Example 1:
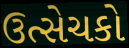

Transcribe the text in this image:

ઉત્સેચકો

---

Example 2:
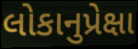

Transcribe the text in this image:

લોકાનુપ્રેક્ષા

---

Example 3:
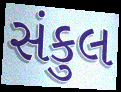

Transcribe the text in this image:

સંકુલ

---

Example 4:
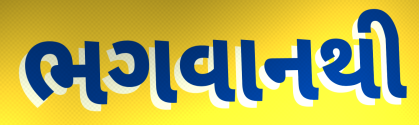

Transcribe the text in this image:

ભગવાનથી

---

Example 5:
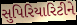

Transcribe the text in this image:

સુપિરિયારિટીને